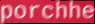
porchhe